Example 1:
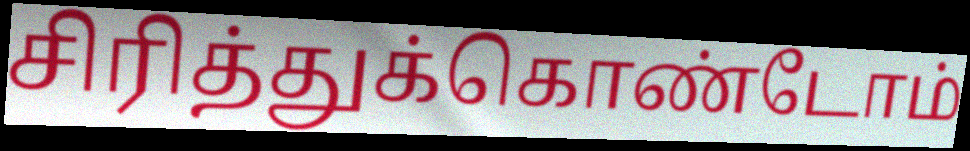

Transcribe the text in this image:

சிரித்துக்கொண்டோம்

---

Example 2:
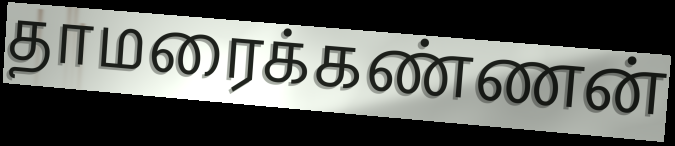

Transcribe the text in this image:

தாமரைக்கண்ணன்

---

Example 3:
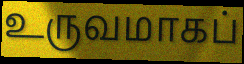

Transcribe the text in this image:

உருவமாகப்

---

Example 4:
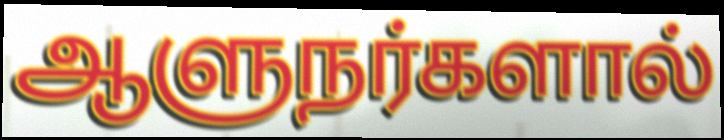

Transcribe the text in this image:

ஆளுநர்களால்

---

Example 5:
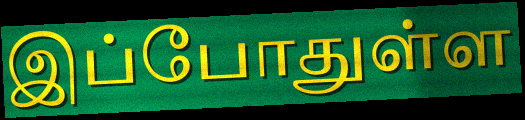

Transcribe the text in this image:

இப்போதுள்ள